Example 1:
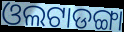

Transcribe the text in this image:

ଓଲଟାଡଙ୍ଗା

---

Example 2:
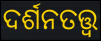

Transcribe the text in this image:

ଦର୍ଶନତତ୍ତ୍ଵ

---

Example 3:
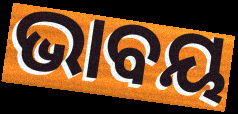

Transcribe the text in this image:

ଭାବୟ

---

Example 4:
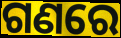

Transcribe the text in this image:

ଗଣରେ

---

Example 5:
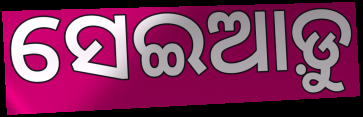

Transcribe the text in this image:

ସେଇଆଡ଼ୁ